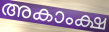
അകാംക്ഷ